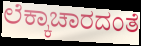
ಲೆಕ್ಕಾಚಾರದಂತೆ